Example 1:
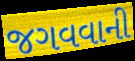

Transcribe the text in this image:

જગવવાની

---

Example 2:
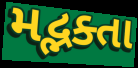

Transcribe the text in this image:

મદ્ભક્તા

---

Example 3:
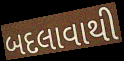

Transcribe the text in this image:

બદલાવાથી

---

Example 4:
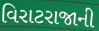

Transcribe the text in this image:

વિરાટરાજાની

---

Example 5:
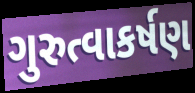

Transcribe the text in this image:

ગુરુત્વાકર્ષણ